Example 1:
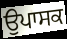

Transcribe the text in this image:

ਉਪਾਸਕ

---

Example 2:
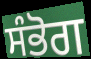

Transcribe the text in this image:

ਸੰਭੋਗ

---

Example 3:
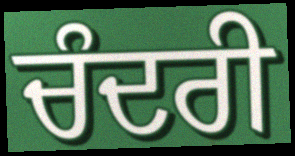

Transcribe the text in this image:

ਚੰਦਰੀ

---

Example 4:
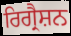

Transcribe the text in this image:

ਰਿਗ੍ਰੈਸ਼ਨ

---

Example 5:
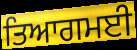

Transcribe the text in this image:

ਤਿਆਗਮਈ